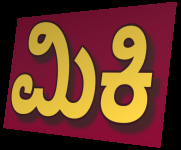
ಮಿಕಿ